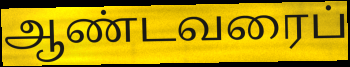
ஆண்டவரைப்